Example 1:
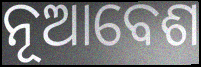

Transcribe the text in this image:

ନୂଆବେଶ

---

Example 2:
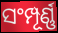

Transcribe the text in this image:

ସଂମ୍ପୂର୍ଣ୍ଣ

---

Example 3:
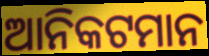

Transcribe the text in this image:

ଆନିକଟମାନ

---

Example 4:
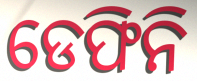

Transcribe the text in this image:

ଡେଫିନି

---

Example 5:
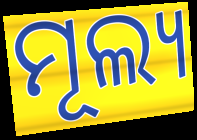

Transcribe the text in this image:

ମୂଲ୍ୟ